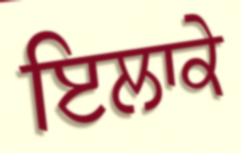
ਇਲਾਕੇ